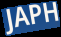
JAPH